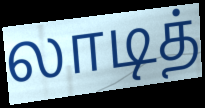
லாடித்